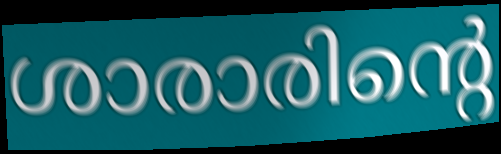
ശാരാരിന്റെ